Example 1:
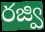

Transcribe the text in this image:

రజ్వి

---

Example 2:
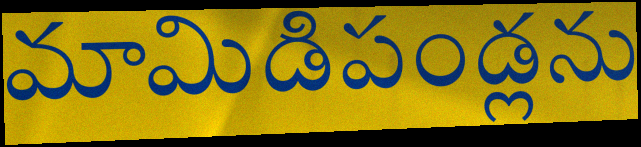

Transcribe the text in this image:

మామిడిపండ్లను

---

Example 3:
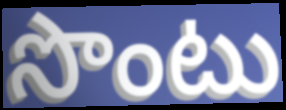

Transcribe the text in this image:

సొంటు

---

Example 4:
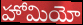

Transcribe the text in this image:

హోమియో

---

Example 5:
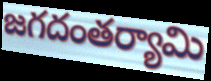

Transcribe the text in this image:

జగదంతర్యామి